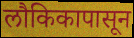
लौकिकापासून